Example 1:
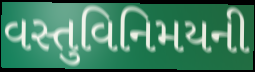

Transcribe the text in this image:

વસ્તુવિનિમયની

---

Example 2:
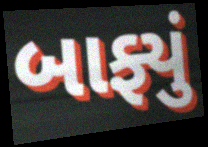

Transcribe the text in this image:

બાફ્યું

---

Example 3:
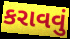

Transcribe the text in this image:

કરાવવું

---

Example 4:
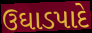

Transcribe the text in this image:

ઉઘાડપાદે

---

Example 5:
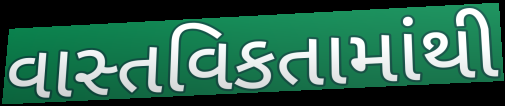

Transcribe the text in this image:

વાસ્તવિકતામાંથી